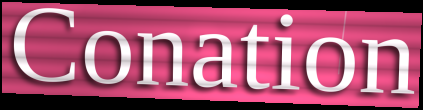
Conation